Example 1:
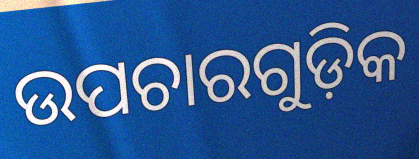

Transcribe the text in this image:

ଉପଚାରଗୁଡ଼ିକ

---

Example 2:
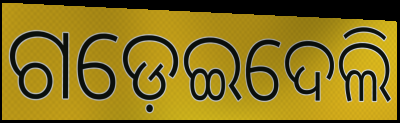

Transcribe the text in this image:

ଗଡ଼େଇଦେଲି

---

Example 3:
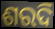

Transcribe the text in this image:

ଶରଦି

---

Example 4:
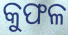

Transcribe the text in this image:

କୁଫଳ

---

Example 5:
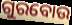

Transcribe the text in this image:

ଗୁରବୋଉ